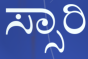
ಸ್ಸಾರಿ